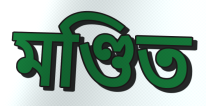
মণ্ডিত